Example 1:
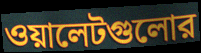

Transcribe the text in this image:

ওয়ালেটগুলোর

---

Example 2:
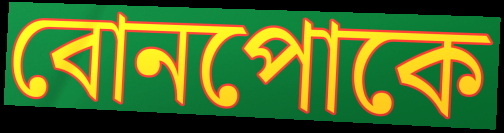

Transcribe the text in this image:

বোনপোকে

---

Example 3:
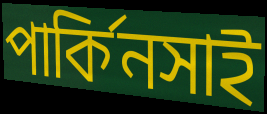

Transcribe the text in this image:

পার্কিনসাই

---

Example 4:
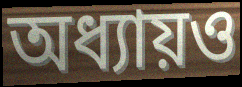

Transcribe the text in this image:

অধ্যায়ও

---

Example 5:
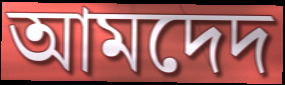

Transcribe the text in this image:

আমদেদ